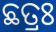
ଛତ୍ରଃ